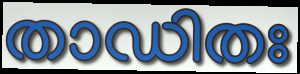
താഡിതഃ